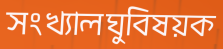
সংখ্যালঘুবিষয়ক